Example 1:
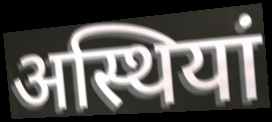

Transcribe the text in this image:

अस्थियां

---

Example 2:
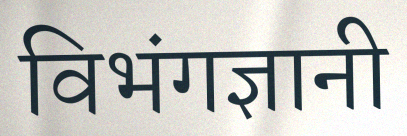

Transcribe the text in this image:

विभंगज्ञानी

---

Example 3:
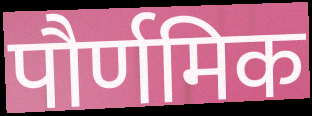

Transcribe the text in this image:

पौर्णमिक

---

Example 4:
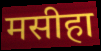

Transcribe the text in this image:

मसीहा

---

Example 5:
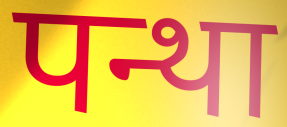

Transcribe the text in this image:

पन्‍था